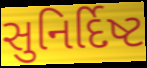
સુનિર્દિષ્ટ